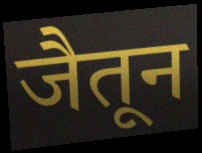
जैतून